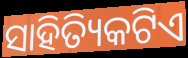
ସାହିତ୍ୟିକଟିଏ